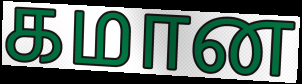
கமான